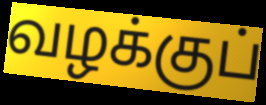
வழக்குப்